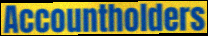
Accountholders